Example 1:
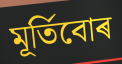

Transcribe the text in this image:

মূৰ্তিবোৰ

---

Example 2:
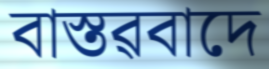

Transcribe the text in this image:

বাস্তৱবাদে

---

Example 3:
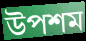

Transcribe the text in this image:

উপশম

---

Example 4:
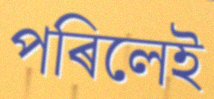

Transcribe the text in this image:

পৰিলেই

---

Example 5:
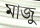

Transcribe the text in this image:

মাজু